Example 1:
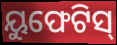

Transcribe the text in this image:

ୟୁଫେଟିସ୍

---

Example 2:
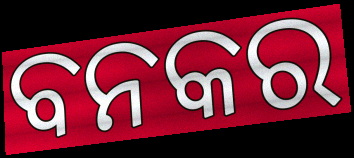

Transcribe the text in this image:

ବନକର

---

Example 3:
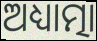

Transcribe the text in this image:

ଅଧ୍ୟାତ୍ମା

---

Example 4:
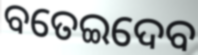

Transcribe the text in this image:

ବତେଇଦେବ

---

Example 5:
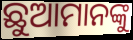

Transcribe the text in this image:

ଛୁଆମାନଙ୍କୁ